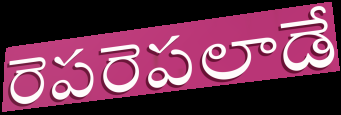
రెపరెపలాడే